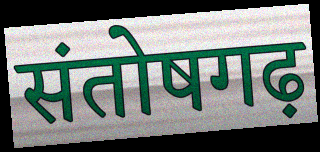
संतोषगढ़